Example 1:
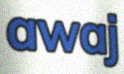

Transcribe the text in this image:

awaj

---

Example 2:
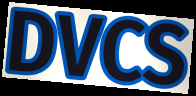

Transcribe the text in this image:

DVCS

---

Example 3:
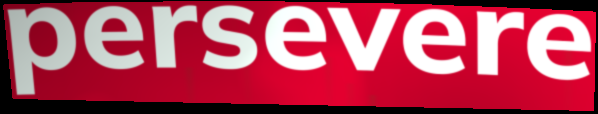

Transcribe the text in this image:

persevere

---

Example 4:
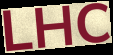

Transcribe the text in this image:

LHC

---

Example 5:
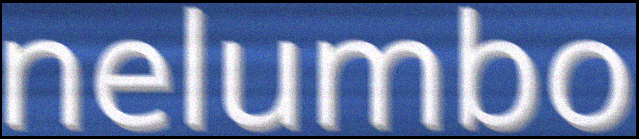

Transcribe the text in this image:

nelumbo